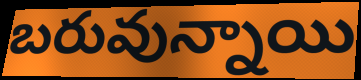
బరువున్నాయి